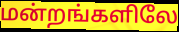
மன்றங்களிலே